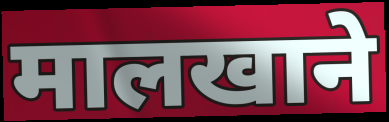
मालखाने